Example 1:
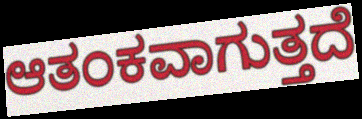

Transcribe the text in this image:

ಆತಂಕವಾಗುತ್ತದೆ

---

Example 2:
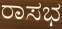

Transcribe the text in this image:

ರಾಸಭ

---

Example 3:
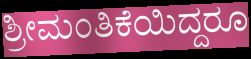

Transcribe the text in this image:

ಶ್ರೀಮಂತಿಕೆಯಿದ್ದರೂ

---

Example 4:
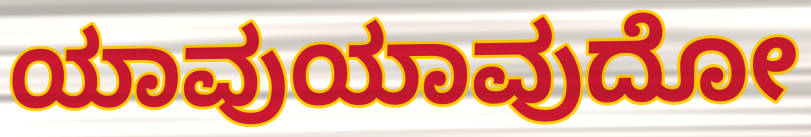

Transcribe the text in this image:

ಯಾವುಯಾವುದೋ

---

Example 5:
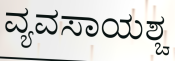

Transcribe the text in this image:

ವ್ಯವಸಾಯಶ್ಚ